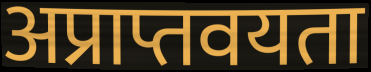
अप्राप्तवयता